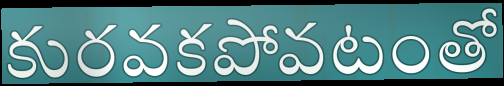
కురవకపోవటంతో